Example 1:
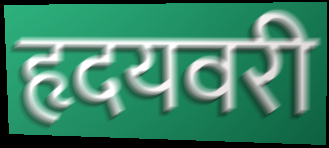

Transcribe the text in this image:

हृदयवरी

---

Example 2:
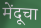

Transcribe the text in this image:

मेंदूचा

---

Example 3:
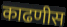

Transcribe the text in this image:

काढणीस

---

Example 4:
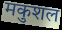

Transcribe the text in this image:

मकुशल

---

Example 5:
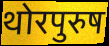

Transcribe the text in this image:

थोरपुरुष